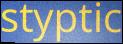
styptic